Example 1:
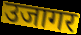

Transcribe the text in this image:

उजागर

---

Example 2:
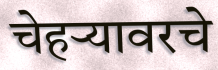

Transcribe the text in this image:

चेहऱ्यावरचे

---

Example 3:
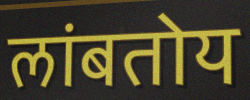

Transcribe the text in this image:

लांबतोय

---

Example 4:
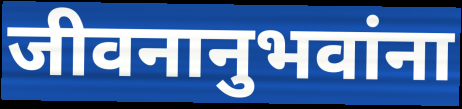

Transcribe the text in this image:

जीवनानुभवांना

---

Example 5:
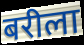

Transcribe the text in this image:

बरीला